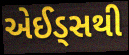
એઈડ્સથી